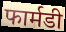
फार्मडी